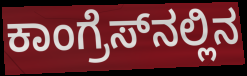
ಕಾಂಗ್ರೆಸ್‌ನಲ್ಲಿನ